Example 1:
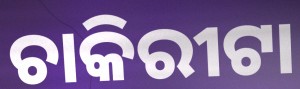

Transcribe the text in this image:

ଚାକିରୀଟା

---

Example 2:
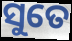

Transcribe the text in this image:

ସୁତେ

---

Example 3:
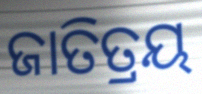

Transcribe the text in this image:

ଜାତିତ୍ରୟ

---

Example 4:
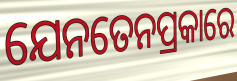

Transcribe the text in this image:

ଯେନତେନପ୍ରକାରେ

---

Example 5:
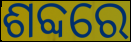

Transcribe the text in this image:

ଶବ୍ଦରେ